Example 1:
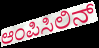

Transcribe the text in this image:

ಆಂಪಿಸಿಲಿನ್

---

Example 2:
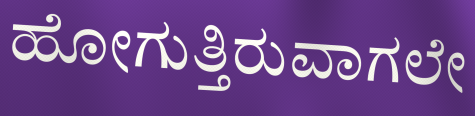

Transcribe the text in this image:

ಹೋಗುತ್ತಿರುವಾಗಲೇ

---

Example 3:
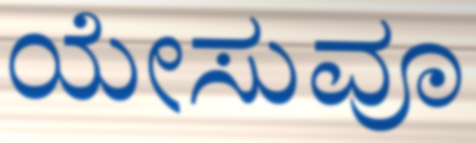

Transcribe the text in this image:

ಯೇಸುವೂ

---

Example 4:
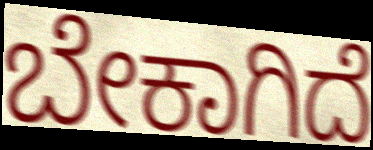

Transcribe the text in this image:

ಬೇಕಾಗಿದೆ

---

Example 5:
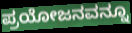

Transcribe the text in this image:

ಪ್ರಯೋಜನವನ್ನೂ